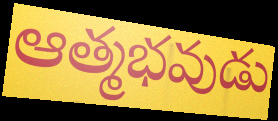
ఆత్మభవుడు